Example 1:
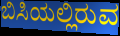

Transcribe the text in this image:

ಬಿಸಿಯಲ್ಲಿರುವ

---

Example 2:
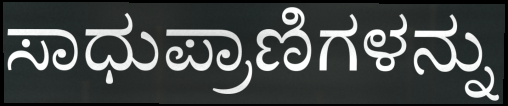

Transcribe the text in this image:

ಸಾಧುಪ್ರಾಣಿಗಳನ್ನು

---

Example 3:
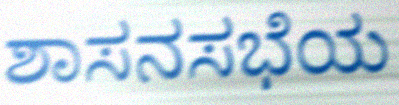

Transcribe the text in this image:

ಶಾಸನಸಭೆಯ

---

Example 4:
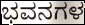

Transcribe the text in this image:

ಭವನಗಳ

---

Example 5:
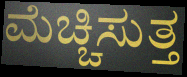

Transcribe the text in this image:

ಮೆಚ್ಚಿಸುತ್ತ